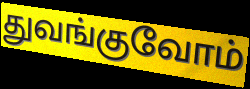
துவங்குவோம்